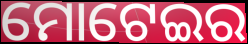
ମୋଟେଇର